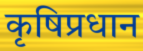
कृषिप्रधान